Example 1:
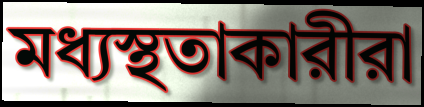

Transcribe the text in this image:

মধ্যস্থতাকারীরা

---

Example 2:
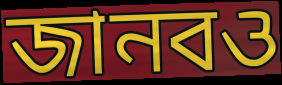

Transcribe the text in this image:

জানবও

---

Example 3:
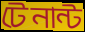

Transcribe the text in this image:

টেনান্ট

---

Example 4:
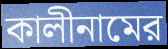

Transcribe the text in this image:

কালীনামের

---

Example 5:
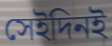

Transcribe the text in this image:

সেইদিনই